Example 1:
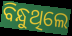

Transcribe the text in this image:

ବିନ୍ଧୁଥିଲେ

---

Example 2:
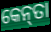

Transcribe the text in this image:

କେନ୍‌ତା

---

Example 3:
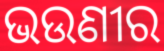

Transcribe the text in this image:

ଭଉଣୀର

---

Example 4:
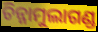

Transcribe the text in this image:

ଚିନ୍ନାମୁଲାଗଣ୍ଡ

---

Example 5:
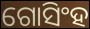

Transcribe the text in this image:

ଗୋସିଂହ